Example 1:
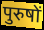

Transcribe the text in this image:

पुरुषों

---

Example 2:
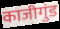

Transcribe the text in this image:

काजीगुंड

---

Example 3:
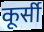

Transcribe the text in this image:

कूर्सी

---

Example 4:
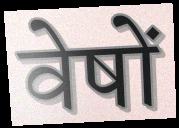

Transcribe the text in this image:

वेषों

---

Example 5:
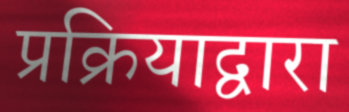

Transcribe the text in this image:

प्रक्रियाद्वारा